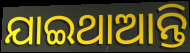
ଯାଇଥାଆନ୍ତି